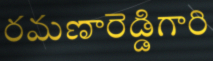
రమణారెడ్డిగారి